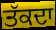
ਤੱਕਦਾ